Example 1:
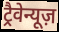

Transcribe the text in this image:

ट्रैवेन्यूज़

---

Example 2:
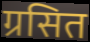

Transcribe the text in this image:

ग्रसित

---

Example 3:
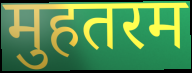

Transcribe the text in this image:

मुहतरम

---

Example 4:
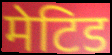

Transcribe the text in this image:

मेटिड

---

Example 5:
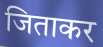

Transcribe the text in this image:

जिताकर